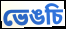
ভেঙচি